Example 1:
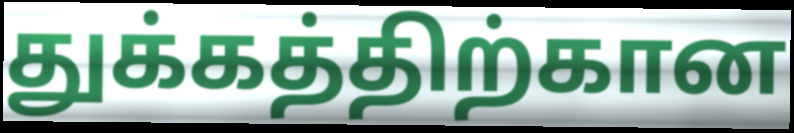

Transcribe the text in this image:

துக்கத்திற்கான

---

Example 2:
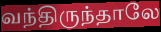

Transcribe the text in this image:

வந்திருந்தாலே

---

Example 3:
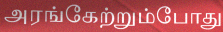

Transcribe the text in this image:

அரங்கேற்றும்போது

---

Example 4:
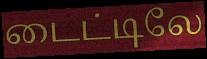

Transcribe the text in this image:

டைட்டிலே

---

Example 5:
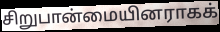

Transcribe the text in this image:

சிறுபான்மையினராகக்